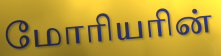
மோரியரின்